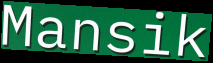
Mansik